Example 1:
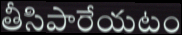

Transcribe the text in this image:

తీసిపారేయటం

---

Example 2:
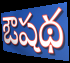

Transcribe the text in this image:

ఔషథ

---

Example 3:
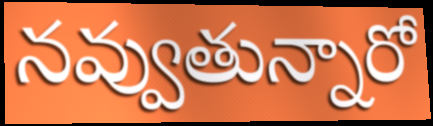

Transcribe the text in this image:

నవ్వుతున్నారో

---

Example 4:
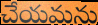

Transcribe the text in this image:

చేయమను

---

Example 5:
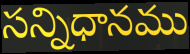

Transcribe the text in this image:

సన్నిధానము